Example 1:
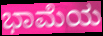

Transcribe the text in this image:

ಭಾಮೆಯ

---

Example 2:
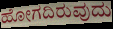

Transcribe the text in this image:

ಹೋಗದಿರುವುದು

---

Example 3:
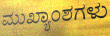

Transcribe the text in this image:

ಮುಖ್ಯಾಂಶಗಳು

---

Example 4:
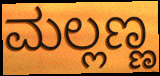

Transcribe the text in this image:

ಮಲ್ಲಣ್ಣ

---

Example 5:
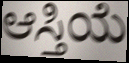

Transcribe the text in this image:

ಆಸ್ತಿಯೆ